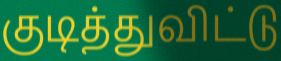
குடித்துவிட்டு